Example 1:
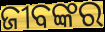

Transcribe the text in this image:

ଜୀବଙ୍କର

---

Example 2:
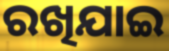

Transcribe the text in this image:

ରଖିଯାଇ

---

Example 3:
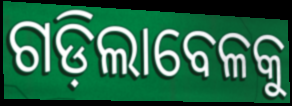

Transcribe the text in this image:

ଗଡ଼ିଲାବେଳକୁ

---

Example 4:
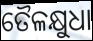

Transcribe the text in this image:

ତୈଳକ୍ଷୁଧା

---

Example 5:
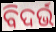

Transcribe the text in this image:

ବିଦର୍ଭ